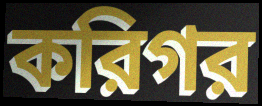
করিগর